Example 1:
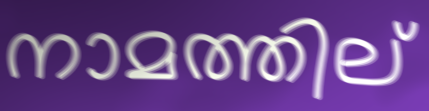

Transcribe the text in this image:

നാമത്തില്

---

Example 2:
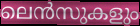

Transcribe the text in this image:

ലെൻസുകളും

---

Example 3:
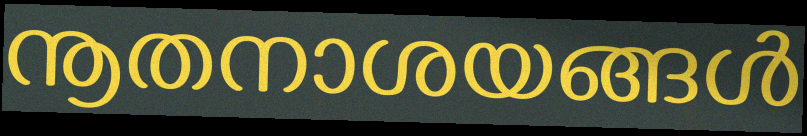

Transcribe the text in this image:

നൂതനാശയങ്ങൾ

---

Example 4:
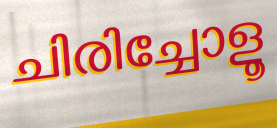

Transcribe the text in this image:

ചിരിച്ചോളൂ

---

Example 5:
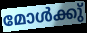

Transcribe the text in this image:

മോൾക്കു്